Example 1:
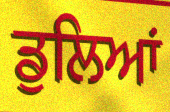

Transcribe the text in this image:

ਡੁਲਿਆਂ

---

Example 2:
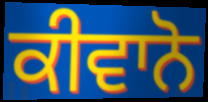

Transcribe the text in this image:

ਕੀਵਾਨੋ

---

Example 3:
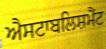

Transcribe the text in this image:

ਐਸਟਾਬਲਿਸ਼ਮੈਂਟ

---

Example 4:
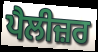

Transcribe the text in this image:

ਪੈਲੀਜ਼ਰ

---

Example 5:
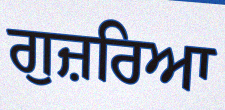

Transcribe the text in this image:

ਗੁਜ਼ਰਿਆ